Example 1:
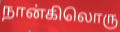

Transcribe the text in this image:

நான்கிலொரு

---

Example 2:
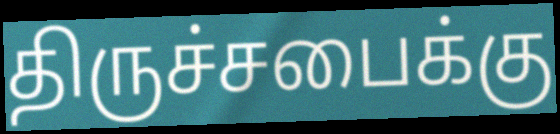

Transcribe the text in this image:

திருச்சபைக்கு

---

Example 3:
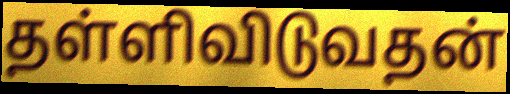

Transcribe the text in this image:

தள்ளிவிடுவதன்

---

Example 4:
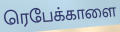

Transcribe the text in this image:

ரெபேக்காளை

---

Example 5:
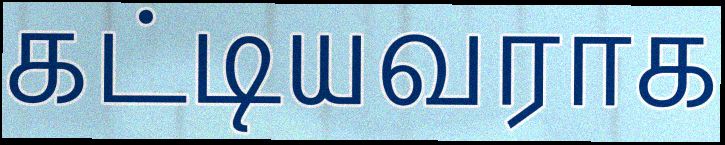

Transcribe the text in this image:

கட்டியவராக